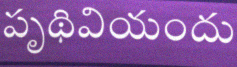
పృథివియందు